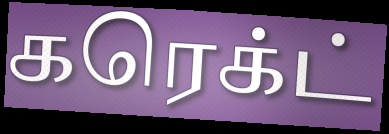
கரெக்ட்